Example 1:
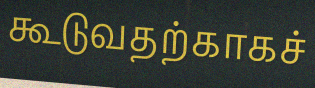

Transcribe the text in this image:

கூடுவதற்காகச்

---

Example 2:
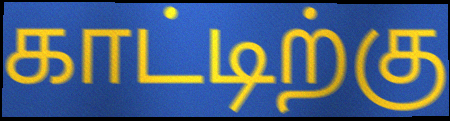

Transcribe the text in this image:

காட்டிற்கு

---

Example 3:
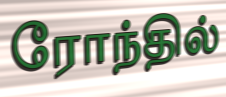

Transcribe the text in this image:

ரோந்தில்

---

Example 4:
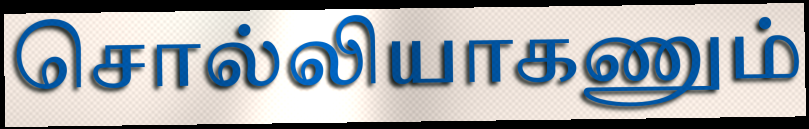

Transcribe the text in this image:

சொல்லியாகணும்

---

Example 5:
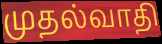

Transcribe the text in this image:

முதல்வாதி